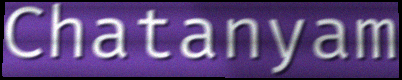
Chatanyam